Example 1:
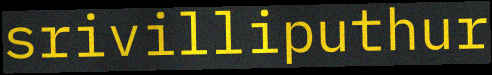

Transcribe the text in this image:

srivilliputhur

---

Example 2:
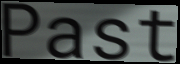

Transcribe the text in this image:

Past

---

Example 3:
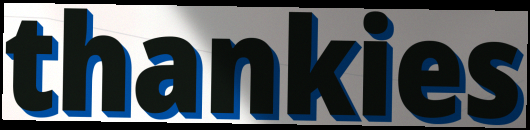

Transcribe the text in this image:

thankies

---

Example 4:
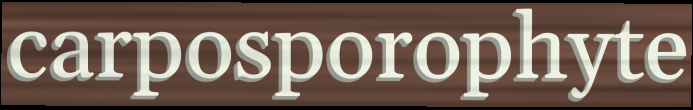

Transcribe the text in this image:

carposporophyte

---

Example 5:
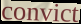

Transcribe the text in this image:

convict